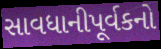
સાવધાનીપૂર્વકનો